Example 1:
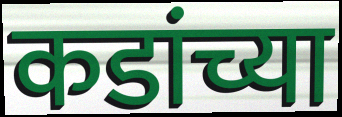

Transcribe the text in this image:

कडांच्या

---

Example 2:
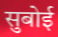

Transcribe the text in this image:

सुबोई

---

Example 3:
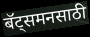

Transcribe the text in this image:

बॅट्समनसाठी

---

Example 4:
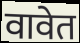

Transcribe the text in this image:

वावेत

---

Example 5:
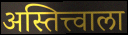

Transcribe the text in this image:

अस्तित्त्वाला